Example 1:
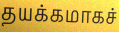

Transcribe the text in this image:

தயக்கமாகச்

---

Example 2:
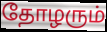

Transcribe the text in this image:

தோழரும்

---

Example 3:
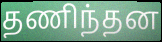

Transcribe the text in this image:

தணிந்தன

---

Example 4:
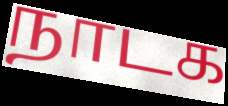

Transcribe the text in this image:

நாடக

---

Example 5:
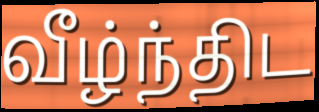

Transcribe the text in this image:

வீழ்ந்திட